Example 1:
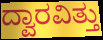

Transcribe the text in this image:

ದ್ವಾರವಿತ್ತು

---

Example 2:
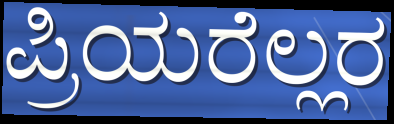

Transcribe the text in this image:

ಪ್ರಿಯರೆಲ್ಲರ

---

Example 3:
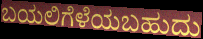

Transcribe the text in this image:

ಬಯಲಿಗೆಳೆಯಬಹುದು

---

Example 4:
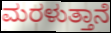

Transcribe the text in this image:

ಮರಳುತ್ತಾನೆ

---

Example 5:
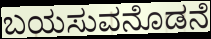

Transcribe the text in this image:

ಬಯಸುವನೊಡನೆ